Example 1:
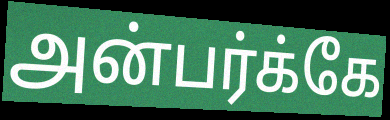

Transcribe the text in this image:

அன்பர்க்கே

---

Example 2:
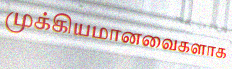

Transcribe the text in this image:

முக்கியமானவைகளாக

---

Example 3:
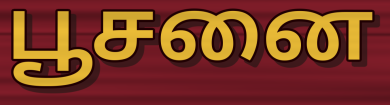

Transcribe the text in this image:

பூசனை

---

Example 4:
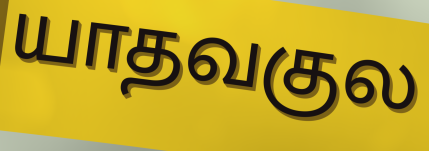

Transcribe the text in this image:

யாதவகுல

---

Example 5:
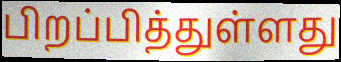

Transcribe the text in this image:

பிறப்பித்துள்ளது